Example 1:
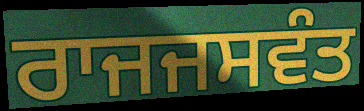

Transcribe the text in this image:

ਰਾਜਜਸਵੰਤ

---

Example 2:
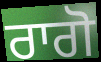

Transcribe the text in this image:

ਰਾਗੋ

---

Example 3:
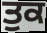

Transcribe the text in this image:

ਤੁਕ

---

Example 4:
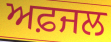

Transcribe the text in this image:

ਅਫ਼ਜਲ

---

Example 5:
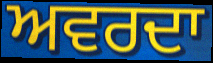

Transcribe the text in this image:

ਅਵਰਦਾ